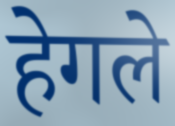
हेगले